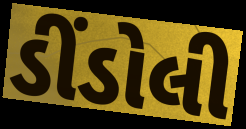
ડીંડોલી